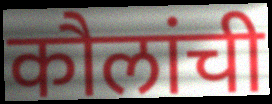
कौलांची